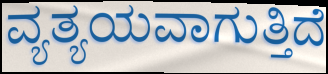
ವ್ಯತ್ಯಯವಾಗುತ್ತಿದೆ